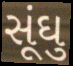
સૂંઘુ